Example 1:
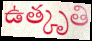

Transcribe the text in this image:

ఉత్కృతి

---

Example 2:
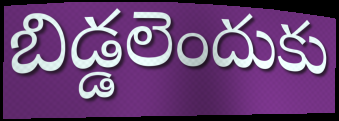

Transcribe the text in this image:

బిడ్డలెందుకు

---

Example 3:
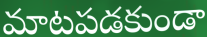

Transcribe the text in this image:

మాటపడకుండా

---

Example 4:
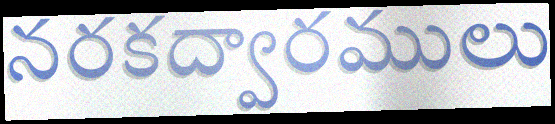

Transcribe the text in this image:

నరకద్వారములు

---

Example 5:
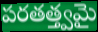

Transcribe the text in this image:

పరతత్త్వమై